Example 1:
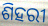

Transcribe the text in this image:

ଶିହରୀ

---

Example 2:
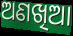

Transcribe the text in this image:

ଅଣଖିଆ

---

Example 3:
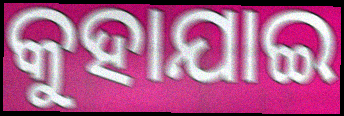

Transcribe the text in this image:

କୁହାଯାଇ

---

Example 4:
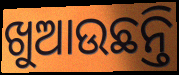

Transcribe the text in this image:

ଖୁଆଉଛନ୍ତି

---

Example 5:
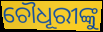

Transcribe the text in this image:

ଚୌଧୂରୀଙ୍କୁ